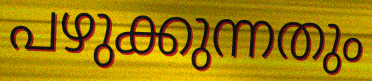
പഴുക്കുന്നതും